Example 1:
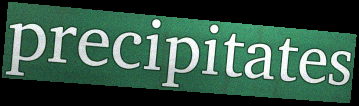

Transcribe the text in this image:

precipitates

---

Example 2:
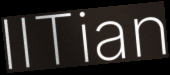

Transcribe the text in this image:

IITian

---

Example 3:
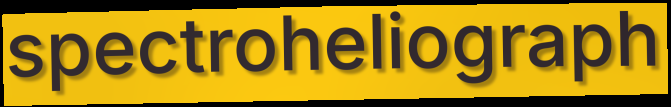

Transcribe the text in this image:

spectroheliograph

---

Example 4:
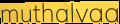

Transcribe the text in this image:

muthalvaa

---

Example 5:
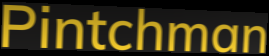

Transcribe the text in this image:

Pintchman